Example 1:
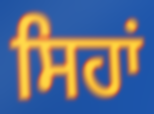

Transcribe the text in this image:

ਸਿਹਾਂ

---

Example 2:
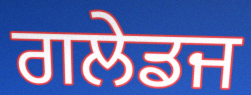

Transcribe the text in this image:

ਗਲੇਡਜ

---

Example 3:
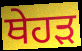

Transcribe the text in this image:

ਥੇਹੜ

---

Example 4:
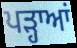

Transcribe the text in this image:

ਪੜ੍ਹਾਆਂ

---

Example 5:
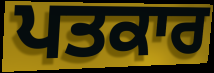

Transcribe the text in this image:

ਪਤਕਾਰ